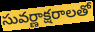
సువర్ణాక్షరాలతో